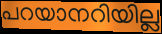
പറയാനറിയില്ല